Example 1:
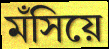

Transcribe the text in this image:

মঁসিয়ে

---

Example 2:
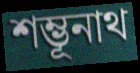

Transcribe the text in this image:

শম্ভূনাথ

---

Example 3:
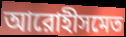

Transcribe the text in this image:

আরোহীসমেত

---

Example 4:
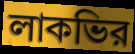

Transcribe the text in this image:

লাকভির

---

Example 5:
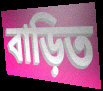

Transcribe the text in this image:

বাড়িত